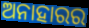
ଅନାହାରର